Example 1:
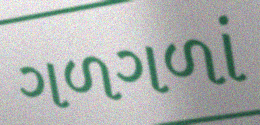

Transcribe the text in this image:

ગળગળાં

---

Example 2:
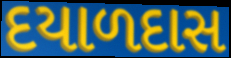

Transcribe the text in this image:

દયાળદાસ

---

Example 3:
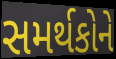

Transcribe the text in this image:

સમર્થકોને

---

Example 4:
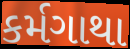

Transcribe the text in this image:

કર્મગાથા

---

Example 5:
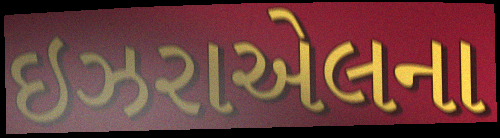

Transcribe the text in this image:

ઇઝરાએલના